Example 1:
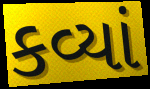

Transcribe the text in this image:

કવ્યાં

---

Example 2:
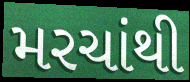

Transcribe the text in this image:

મરચાંથી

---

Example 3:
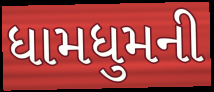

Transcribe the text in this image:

ધામધુમની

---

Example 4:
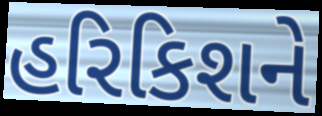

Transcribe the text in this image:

હરિકિશને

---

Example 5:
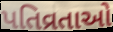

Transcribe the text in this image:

પતિવ્રતાઓ